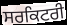
ਸਰਕਿਟਰੀ